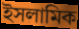
ইসলামিক